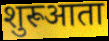
शुरूआता